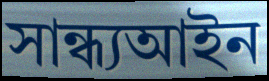
সান্ধ্যআইন